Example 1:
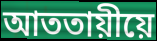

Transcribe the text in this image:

আততায়ীয়ে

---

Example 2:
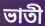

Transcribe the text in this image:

ভাতী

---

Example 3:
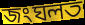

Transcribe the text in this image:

জংঘলত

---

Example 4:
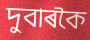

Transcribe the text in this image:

দুবাৰকৈ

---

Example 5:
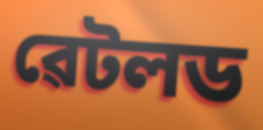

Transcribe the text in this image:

ৱেটলড